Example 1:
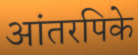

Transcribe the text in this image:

आंतरपिके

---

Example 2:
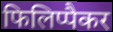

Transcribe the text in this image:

फिलिप्पैकर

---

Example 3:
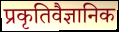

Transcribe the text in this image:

प्रकृतिवैज्ञानिक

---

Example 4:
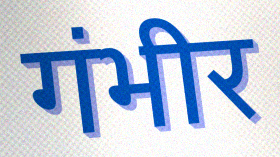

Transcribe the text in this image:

गंभीर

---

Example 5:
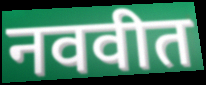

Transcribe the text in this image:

नववीत